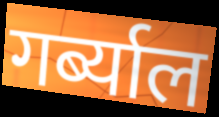
गर्ब्याल